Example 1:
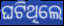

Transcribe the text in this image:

ଘଟିଥିଲେ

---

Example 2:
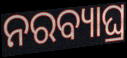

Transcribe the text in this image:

ନରବ୍ୟାଘ୍ର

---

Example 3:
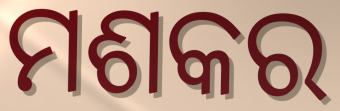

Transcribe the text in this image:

ମଶକର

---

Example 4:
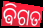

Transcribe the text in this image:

ଵିଗତ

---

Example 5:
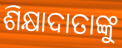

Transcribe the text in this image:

ଶିକ୍ଷାଦାତାଙ୍କୁ